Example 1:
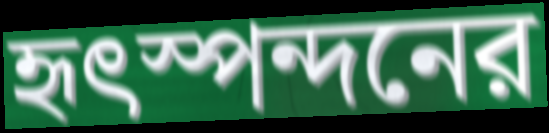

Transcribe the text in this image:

হৃৎস্পন্দনের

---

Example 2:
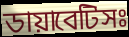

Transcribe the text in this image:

ডায়াবেটিসঃ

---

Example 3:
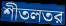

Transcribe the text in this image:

শীতলতর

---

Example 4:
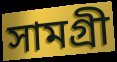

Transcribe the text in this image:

সামগ্রী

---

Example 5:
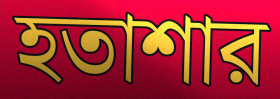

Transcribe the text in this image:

হতাশার